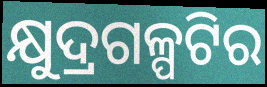
କ୍ଷୁଦ୍ରଗଳ୍ପଟିର